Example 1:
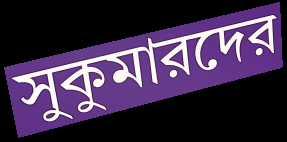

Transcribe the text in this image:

সুকুমারদের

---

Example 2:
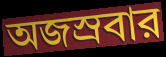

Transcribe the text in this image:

অজস্রবার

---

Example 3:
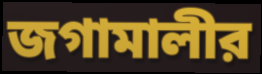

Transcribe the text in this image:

জগামালীর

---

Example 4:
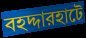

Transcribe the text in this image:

বহদ্দারহাটে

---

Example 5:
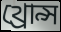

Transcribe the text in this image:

থ্রোন্স